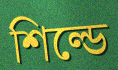
শিল্ডে